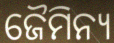
ଜୈମିନ୍ୟ